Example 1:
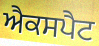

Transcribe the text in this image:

ਐਕਸਪੈਟ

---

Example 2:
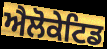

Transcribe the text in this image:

ਐਲੋਕੇਟਿਡ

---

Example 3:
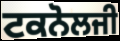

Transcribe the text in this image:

ਟਕਨੋਲਜੀ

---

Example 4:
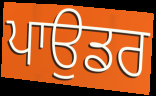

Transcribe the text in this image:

ਪਾਉਡਰ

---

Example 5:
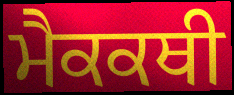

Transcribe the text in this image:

ਮੈਕਕਥੀ